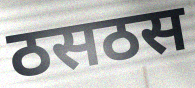
ठसठस